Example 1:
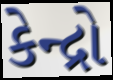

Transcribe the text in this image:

કેન્દ્રો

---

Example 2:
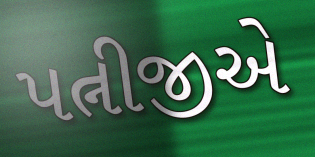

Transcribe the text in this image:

પત્નીજીએ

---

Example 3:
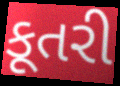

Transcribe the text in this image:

કૂતરી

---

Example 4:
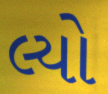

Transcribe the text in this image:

લ્યો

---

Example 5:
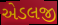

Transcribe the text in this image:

એડલજી